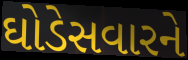
ઘોડેસવારને